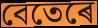
বেতেৰে